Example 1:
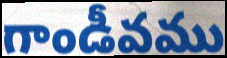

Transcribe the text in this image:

గాండీవము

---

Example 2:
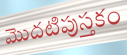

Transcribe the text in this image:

మొదటిపుస్తకం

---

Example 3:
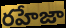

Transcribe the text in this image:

రహేజా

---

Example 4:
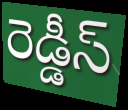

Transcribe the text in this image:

రెడ్డీస్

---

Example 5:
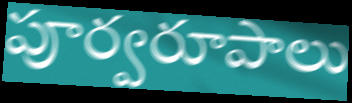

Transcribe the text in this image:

పూర్వరూపాలు